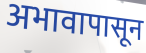
अभावापासून